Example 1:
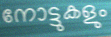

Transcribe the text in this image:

നോട്ടുകളും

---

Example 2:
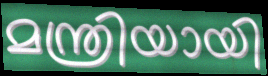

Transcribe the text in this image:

മന്ത്രിയായി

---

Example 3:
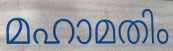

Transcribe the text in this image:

മഹാമതിം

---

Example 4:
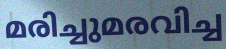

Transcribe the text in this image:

മരിച്ചുമരവിച്ച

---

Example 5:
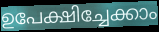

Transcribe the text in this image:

ഉപേക്ഷിച്ചേക്കാം